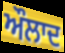
ਔਲਾਦ